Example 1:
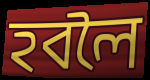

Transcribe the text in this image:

হবলৈ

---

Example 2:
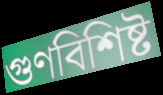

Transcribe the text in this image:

গুণবিশিষ্ট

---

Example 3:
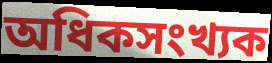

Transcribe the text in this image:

অধিকসংখ্যক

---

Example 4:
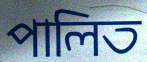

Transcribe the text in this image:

পালিত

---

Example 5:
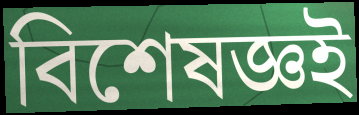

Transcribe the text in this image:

বিশেষজ্ঞই